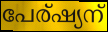
പേര്ഷ്യന്